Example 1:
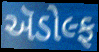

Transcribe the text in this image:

ઍડોલ્ફ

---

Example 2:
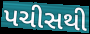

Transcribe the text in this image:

પચીસથી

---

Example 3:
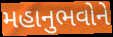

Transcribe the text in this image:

મહાનુભવોને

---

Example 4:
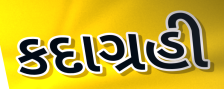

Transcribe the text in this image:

કદાગ્રહી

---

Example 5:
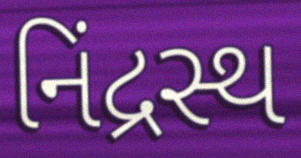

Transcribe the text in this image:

નિંદ્રસ્થ